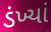
ડંખ્યાં